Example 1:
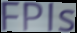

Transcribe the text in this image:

FPIs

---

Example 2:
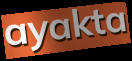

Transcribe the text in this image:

ayakta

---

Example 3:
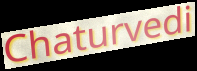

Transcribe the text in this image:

Chaturvedi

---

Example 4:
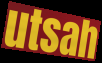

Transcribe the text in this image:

utsah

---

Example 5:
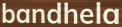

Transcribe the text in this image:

bandhela